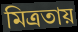
মিত্রতায়